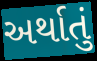
અર્થાતું